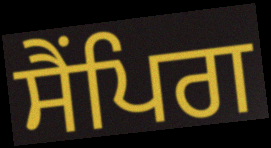
ਸੈਂਪਿਗ